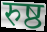
रुष्ठ